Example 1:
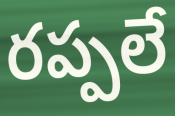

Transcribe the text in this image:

రప్పలే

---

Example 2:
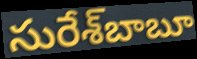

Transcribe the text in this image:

సురేశ్‌బాబూ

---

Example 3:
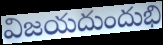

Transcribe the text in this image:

విజయదుందుభి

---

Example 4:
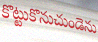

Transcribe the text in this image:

కొట్టుకొనుచుండెను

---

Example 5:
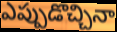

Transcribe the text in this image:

ఎప్పుడొచ్చినా